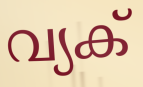
വ്യക്